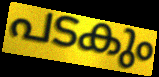
പടകും